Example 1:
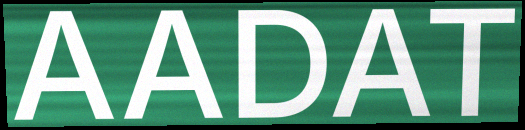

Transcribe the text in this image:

AADAT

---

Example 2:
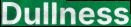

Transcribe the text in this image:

Dullness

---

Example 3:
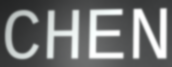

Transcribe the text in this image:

CHEN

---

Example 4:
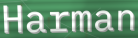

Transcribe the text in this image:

Harman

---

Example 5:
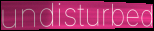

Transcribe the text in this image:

undisturbed